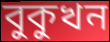
বুকুখন